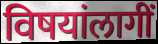
विषयांलागीं